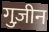
गुज़ीन